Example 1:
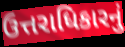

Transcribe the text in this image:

ઉત્તરાધિકારનું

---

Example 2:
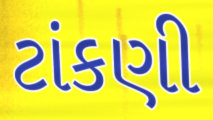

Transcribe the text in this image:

ટાંકણી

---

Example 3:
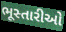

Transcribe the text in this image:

ભૂસ્તારીઓ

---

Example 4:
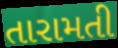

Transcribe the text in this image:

તારામતી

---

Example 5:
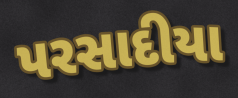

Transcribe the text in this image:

પરસાદીયા